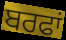
ਬਰਫਾਂ